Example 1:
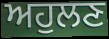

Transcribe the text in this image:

ਅਹੁਲਣ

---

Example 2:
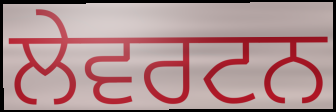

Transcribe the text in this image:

ਲੇਵਰਟਨ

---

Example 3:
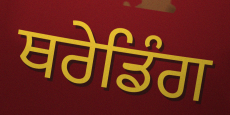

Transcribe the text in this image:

ਥਰੇਡਿੰਗ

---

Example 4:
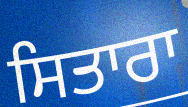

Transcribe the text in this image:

ਸਿਤਾਰਾ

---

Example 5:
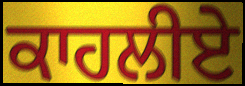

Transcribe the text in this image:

ਕਾਹਲੀਏ